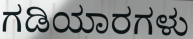
ಗಡಿಯಾರಗಳು